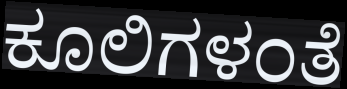
ಕೂಲಿಗಳಂತೆ